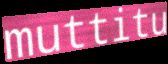
muttitu